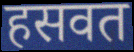
हसवत